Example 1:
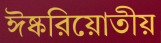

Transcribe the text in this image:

ঈষ্করিয়োতীয়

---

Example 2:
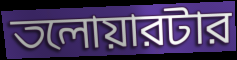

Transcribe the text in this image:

তলোয়ারটার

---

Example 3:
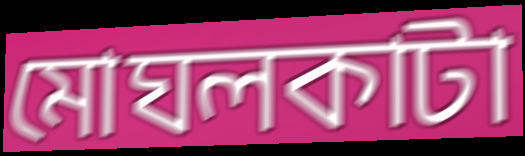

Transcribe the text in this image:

মোঘলকাটা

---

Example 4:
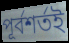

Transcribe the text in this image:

পূর্বশর্তই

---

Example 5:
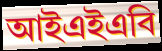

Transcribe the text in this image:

আইএইএবি